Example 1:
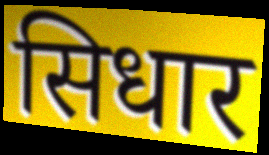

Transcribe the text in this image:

सिधार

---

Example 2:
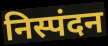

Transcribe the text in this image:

निस्पंदन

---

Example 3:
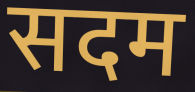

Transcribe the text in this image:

सदम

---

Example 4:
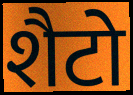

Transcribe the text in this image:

शैटो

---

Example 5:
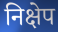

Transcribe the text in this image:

निक्षेप